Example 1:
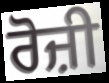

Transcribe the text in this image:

ਰੋਜ਼ੀ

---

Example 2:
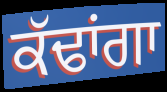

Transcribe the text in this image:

ਕੱਢਾਂਗਾ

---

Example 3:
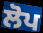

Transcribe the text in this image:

ਲੋਪ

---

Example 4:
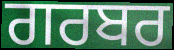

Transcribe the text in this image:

ਗਰਬਰ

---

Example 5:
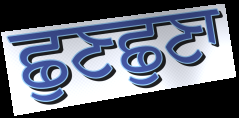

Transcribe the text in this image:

ਛੁਣਛੁਣਾ